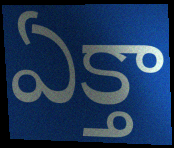
ఏక్తా